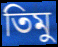
তিমু